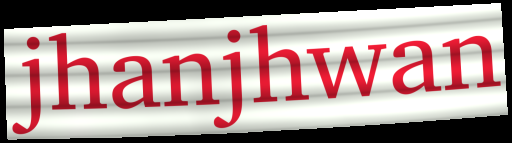
jhanjhwan